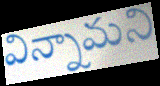
విన్నామని